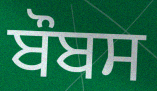
ਬੌਬਸ